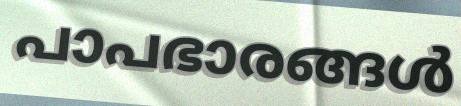
പാപഭാരങ്ങൾ